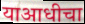
याआधीचा